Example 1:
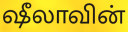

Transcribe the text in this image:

ஷீலாவின்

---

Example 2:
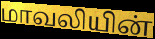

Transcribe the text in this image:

மாவலியின்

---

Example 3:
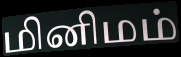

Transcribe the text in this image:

மினிமம்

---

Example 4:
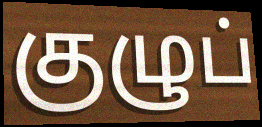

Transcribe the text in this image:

குழுப்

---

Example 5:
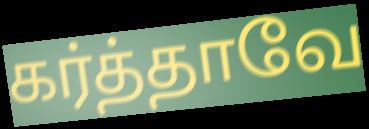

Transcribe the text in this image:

கர்த்தாவே